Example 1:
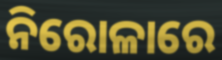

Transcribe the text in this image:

ନିରୋଳାରେ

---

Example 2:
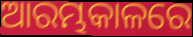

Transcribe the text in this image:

ଆରମ୍ଭକାଳରେ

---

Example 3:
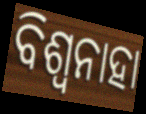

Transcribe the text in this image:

ବିଶ୍ଵନାହା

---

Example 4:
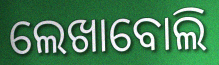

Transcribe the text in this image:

ଲେଖାବୋଲି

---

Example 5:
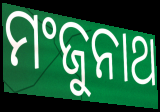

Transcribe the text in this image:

ମଂଜୁନାଥ